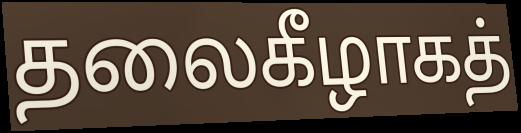
தலைகீழாகத்